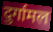
दुर्गामल